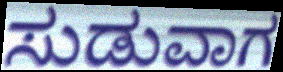
ಸುಡುವಾಗ